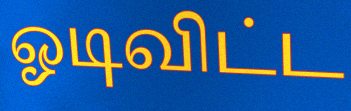
ஓடிவிட்ட